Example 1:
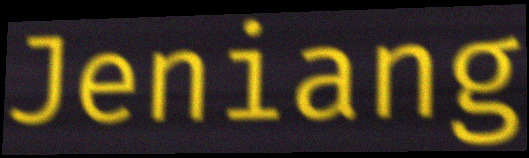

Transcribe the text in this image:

Jeniang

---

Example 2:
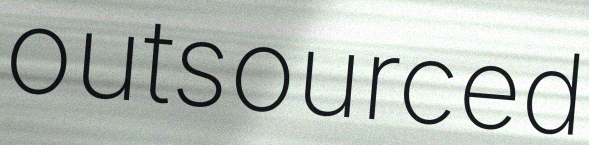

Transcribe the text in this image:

outsourced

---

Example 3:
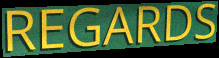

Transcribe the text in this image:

REGARDS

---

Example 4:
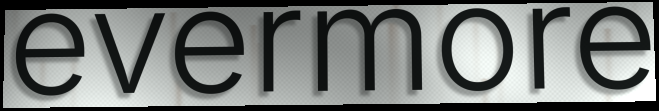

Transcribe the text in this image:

evermore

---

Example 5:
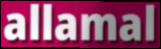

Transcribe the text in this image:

allamal